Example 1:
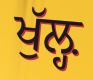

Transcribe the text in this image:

ਖੁੱਲ਼੍ਹ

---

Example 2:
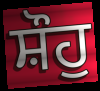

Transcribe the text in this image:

ਸ਼ੌਹੁ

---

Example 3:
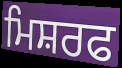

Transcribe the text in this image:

ਮਿਸ਼ਰਫ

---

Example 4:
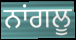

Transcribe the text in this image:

ਨਾਂਗਲੂ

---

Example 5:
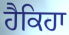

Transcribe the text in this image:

ਹੈਕਿਹਾ